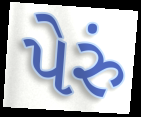
પેરું